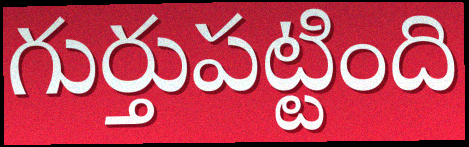
గుర్తుపట్టింది